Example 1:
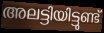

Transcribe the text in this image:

അലട്ടിയിട്ടുണ്ട്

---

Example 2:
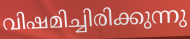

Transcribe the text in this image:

വിഷമിച്ചിരിക്കുന്നു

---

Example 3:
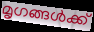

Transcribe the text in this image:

മൃഗങ്ങൾക്ക്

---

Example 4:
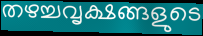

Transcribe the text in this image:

തഴച്ചവൃക്ഷങ്ങളുടെ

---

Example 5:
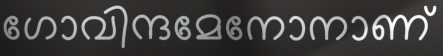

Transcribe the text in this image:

ഗോവിന്ദമേനോനാണ്